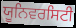
ਯੂਨਿਵਰਸਿਟੀ